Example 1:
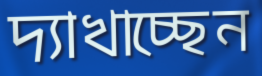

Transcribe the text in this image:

দ্যাখাচ্ছেন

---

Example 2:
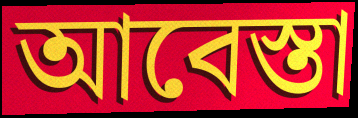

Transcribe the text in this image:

আবেস্তা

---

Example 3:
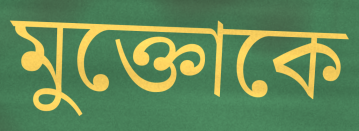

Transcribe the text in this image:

মুক্তোকে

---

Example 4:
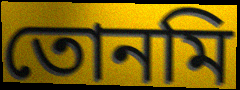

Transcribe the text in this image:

তোনমি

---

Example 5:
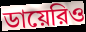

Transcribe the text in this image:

ডায়েরিও